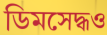
ডিমসেদ্ধও